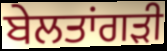
ਬੇਲਤਾਂਗੜੀ